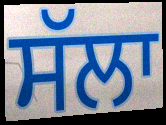
ਸੱਲਾ